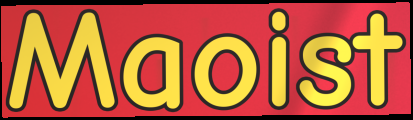
Maoist